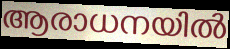
ആരാധനയിൽ